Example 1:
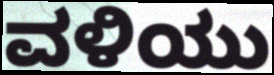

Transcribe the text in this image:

ವಳಿಯು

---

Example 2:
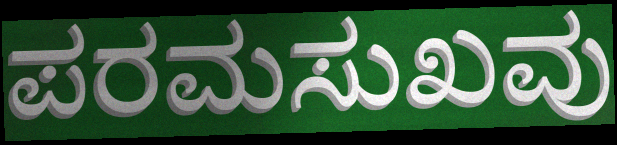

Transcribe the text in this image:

ಪರಮಸುಖವು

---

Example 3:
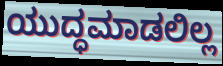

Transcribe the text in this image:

ಯುದ್ಧಮಾಡಲಿಲ್ಲ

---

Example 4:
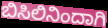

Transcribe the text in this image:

ಬಿಸಿಲಿನಿಂದಾಗಿ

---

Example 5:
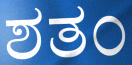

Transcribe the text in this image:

ಶತಂ